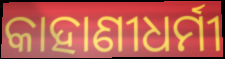
କାହାଣୀଧର୍ମୀ